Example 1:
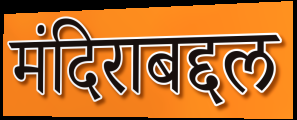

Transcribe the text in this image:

मंदिराबद्दल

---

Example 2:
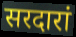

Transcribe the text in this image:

सरदारां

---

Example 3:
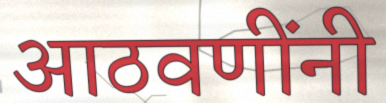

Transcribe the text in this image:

आठवणींनी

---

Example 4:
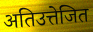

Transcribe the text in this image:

अतिउत्तेजित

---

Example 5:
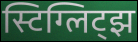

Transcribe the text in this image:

स्टिग्लिट्झ